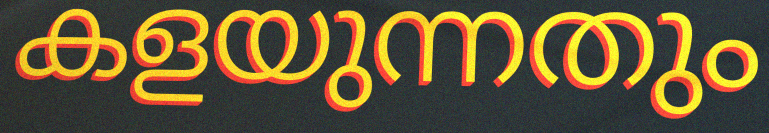
കളയുന്നതും